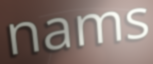
nams